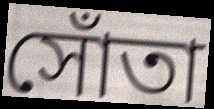
সোঁতা